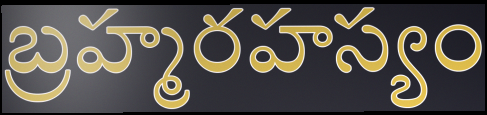
బ్రహ్మరహస్యం